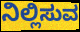
ನಿಲ್ಲಿಸುವ